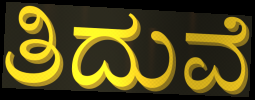
ತಿದುವೆ